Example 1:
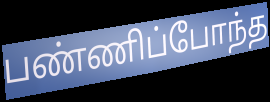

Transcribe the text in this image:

பண்ணிப்போந்த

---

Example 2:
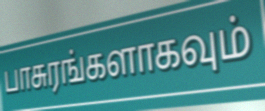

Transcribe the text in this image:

பாசுரங்களாகவும்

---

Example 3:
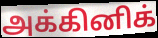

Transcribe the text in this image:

அக்கினிக்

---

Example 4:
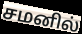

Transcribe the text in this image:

சமனில்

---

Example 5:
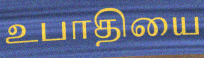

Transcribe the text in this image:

உபாதியை